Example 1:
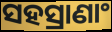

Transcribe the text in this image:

ସହସ୍ରାଣାଂ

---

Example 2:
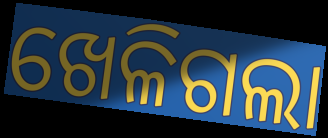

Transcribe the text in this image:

ଖେଳିଗଲା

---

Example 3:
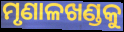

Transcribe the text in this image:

ମୃଣାଳଖଣ୍ଡକୁ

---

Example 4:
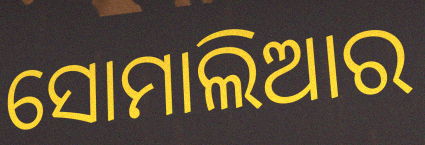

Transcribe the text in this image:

ସୋମାଲିଆର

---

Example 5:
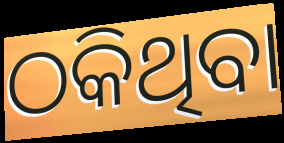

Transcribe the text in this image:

ଠକିଥିବା